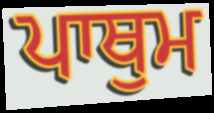
ਪਾਥੁਮ